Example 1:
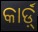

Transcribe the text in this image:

କାର୍ଡ଼୍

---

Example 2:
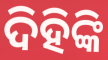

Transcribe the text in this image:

ଦିହିଙ୍କି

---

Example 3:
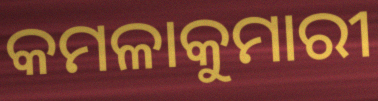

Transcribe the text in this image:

କମଳାକୁମାରୀ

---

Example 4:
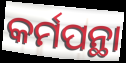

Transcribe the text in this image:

କର୍ମପନ୍ଥା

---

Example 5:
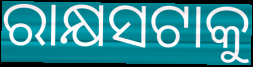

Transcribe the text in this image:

ରାକ୍ଷସଟାକୁ